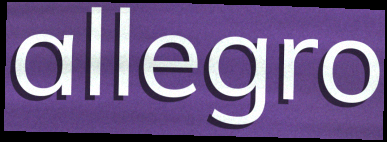
allegro